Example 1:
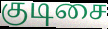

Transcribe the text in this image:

குடிசை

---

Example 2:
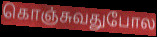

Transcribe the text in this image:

கொஞ்சுவதுபோல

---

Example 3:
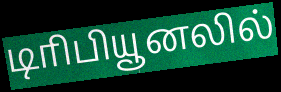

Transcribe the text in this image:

டிரிபியூனலில்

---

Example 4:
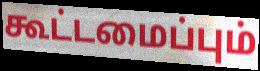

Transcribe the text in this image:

கூட்டமைப்பும்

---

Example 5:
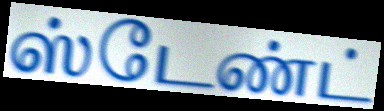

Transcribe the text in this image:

ஸ்டேண்ட்